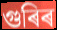
গুৰিৰ